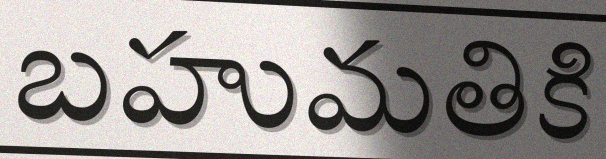
బహుమతికి